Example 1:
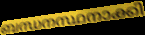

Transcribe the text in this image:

ബന്ധനസ്ഥനാക്കി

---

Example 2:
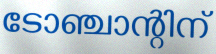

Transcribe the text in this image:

ടോഞ്ചാന്റിന്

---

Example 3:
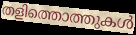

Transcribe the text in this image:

തളിത്തൊത്തുകൾ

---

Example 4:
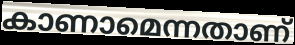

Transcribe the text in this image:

കാണാമെന്നതാണ്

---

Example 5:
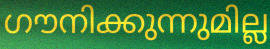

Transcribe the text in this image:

ഗൗനിക്കുന്നുമില്ല